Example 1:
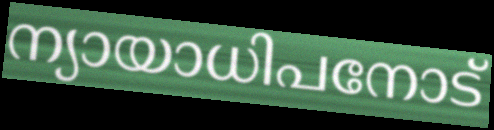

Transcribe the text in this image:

ന്യായാധിപനോട്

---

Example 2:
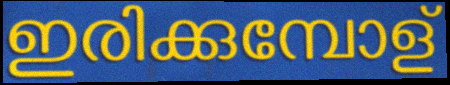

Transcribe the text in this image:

ഇരിക്കുമ്പോള്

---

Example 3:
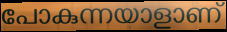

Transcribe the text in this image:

പോകുന്നയാളാണ്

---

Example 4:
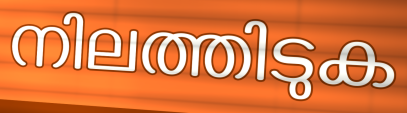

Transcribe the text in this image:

നിലത്തിടുക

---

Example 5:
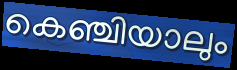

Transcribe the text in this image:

കെഞ്ചിയാലും